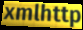
xmlhttp